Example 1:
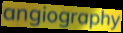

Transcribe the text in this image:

angiography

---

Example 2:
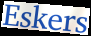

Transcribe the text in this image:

Eskers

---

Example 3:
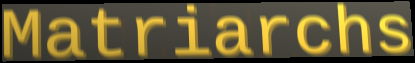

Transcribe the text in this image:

Matriarchs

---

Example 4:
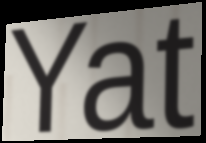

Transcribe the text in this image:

Yat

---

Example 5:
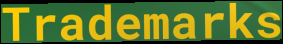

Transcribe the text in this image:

Trademarks